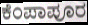
ಕೆಂಪಾಪೂರ